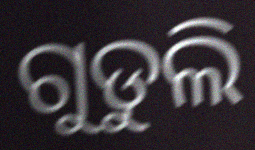
ଗୁଡୁଲି